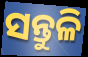
ସନ୍ତୁଳି